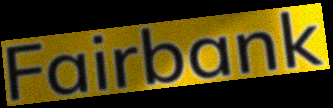
Fairbank